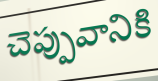
చెప్పువానికి